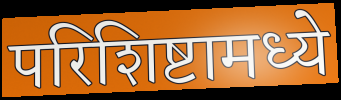
परिशिष्टामध्ये